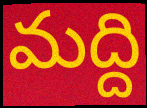
మద్ది